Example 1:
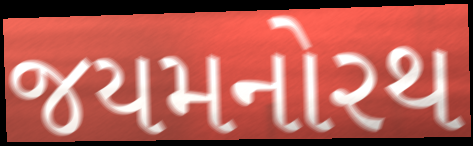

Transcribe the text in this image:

જયમનોરથ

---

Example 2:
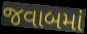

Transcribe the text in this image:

જવાબમાં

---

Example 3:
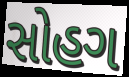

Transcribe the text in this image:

સોહગ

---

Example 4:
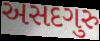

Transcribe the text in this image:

અસદગુરુ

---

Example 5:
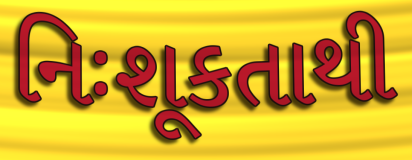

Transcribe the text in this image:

નિઃશૂકતાથી